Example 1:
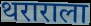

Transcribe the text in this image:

थराराला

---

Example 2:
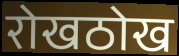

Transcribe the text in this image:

रोखठोख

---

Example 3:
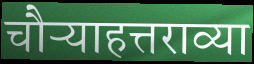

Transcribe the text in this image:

चौऱ्याहत्तराव्या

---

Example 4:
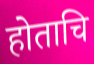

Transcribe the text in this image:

होताचि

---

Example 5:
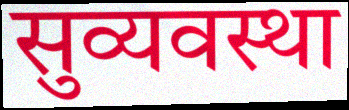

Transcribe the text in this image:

सुव्यवस्था